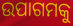
ଉପାଗମକୁ